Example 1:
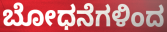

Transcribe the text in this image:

ಬೋಧನೆಗಳಿಂದ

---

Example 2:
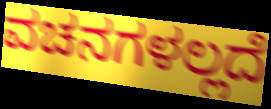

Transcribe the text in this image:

ವಚನಗಳಲ್ಲದೆ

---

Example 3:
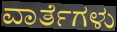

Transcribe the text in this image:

ವಾರ್ತೆಗಳು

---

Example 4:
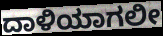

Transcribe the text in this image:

ದಾಳಿಯಾಗಲೀ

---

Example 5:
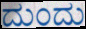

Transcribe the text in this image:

ದುಂದು